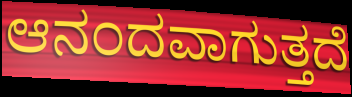
ಆನಂದವಾಗುತ್ತದೆ